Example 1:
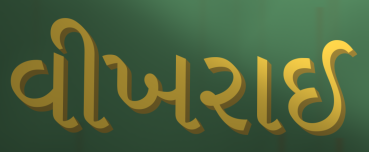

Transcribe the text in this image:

વીખરાઈ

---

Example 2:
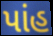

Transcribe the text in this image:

પાંહ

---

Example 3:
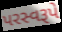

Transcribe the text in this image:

પરસ્વરૂપે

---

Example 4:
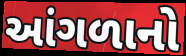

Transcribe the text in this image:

આંગળાનો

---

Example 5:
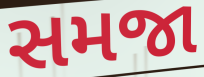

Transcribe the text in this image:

સમજા